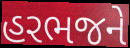
હરભજને